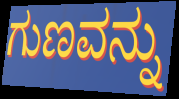
ಗುಣವನ್ನು